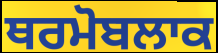
ਥਰਮੋਬਲਾਕ